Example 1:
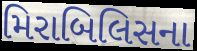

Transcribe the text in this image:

મિરાબિલિસના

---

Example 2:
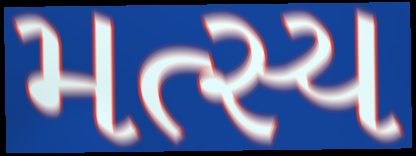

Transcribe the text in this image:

મત્સ્ય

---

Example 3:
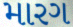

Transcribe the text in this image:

મારગ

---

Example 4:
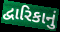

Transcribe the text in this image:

દ્વારિકાનું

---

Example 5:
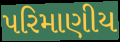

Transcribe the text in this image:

પરિમાણીય